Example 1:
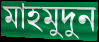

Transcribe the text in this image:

মাহমুদুন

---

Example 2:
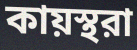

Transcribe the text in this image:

কায়স্থরা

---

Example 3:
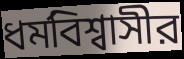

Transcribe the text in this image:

ধর্মবিশ্বাসীর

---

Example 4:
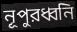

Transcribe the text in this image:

নূপুরধ্বনি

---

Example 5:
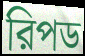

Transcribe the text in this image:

রিপড